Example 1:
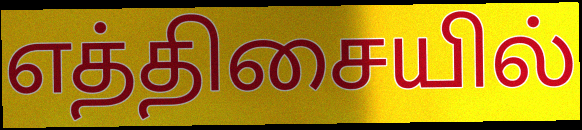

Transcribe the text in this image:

எத்திசையில்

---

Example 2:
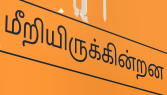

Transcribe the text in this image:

மீறியிருக்கின்றன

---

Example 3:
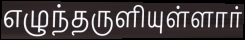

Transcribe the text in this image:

எழுந்தருளியுள்ளார்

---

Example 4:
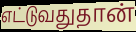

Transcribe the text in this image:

எட்டுவதுதான்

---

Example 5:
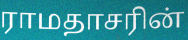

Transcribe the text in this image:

ராமதாசரின்